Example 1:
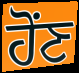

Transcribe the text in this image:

ਹੋਂਣ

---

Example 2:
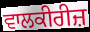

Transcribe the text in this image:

ਵਾਲਕੀਰੀਜ਼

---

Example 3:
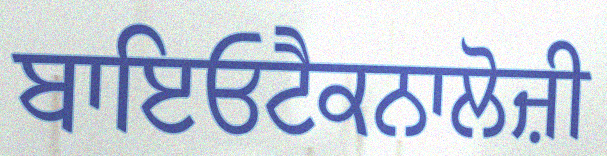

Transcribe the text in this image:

ਬਾਇਓਟੈਕਨਾਲੋਜ਼ੀ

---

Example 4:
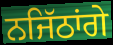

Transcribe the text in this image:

ਨਜਿੱਠਾਂਗੇ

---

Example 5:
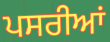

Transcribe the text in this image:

ਪਸਰੀਆਂ